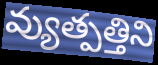
వ్యుత్పత్తిని